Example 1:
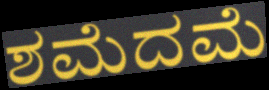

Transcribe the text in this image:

ಶಮೆದಮೆ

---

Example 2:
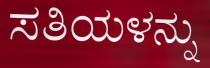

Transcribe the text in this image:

ಸತಿಯಳನ್ನು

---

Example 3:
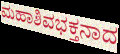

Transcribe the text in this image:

ಮಹಾಶಿವಭಕ್ತನಾದ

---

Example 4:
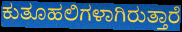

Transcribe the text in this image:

ಕುತೂಹಲಿಗಳಾಗಿರುತ್ತಾರೆ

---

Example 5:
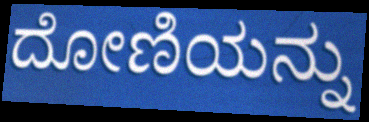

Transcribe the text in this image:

ದೋಣಿಯನ್ನು